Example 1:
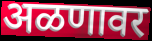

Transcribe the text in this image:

अळणावर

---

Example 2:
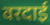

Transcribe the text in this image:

वरदाई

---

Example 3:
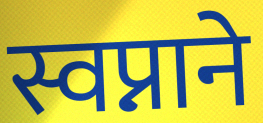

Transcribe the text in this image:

स्वप्नाने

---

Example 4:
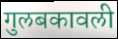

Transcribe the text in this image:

गुलबकावली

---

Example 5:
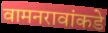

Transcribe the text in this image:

वामनरावांकडे